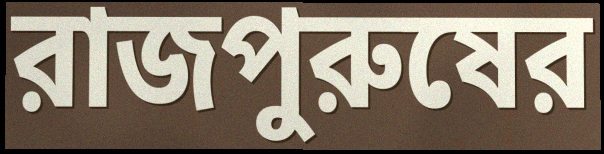
রাজপুরুষের